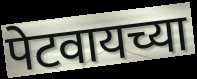
पेटवायच्या